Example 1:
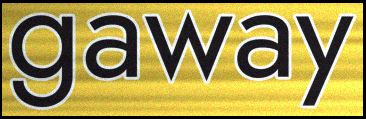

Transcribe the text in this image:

gaway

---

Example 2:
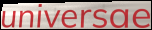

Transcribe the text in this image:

universae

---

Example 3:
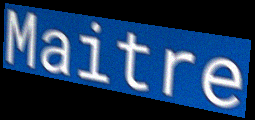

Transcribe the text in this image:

Maitre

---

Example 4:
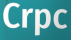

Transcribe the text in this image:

Crpc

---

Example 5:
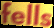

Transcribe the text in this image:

fells